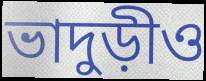
ভাদুড়ীও